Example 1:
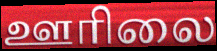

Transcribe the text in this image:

ஊரிலை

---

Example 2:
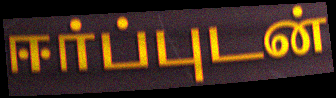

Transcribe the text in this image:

ஈர்ப்புடன்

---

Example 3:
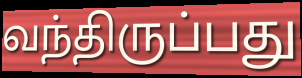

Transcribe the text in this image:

வந்திருப்பது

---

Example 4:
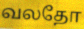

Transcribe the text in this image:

வலதோ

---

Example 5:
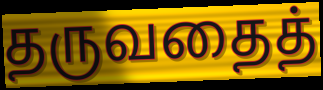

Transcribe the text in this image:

தருவதைத்